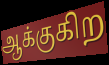
ஆக்குகிற